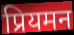
प्रियमन